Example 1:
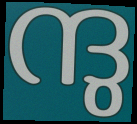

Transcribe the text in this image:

ന്ദു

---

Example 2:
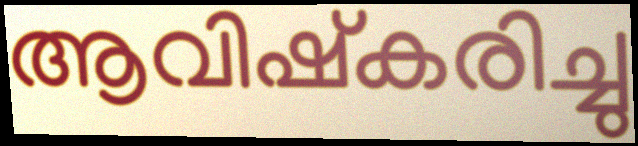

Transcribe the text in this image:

ആവിഷ്കരിച്ചു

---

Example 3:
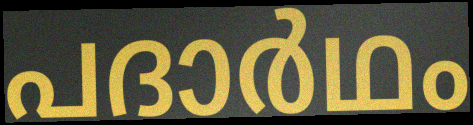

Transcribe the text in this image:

പദാർഥം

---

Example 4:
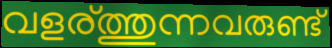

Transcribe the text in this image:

വളര്ത്തുന്നവരുണ്ട്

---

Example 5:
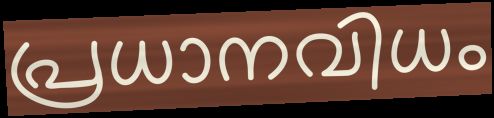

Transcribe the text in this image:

പ്രധാനവിധം